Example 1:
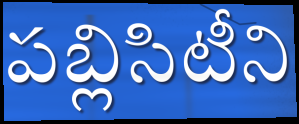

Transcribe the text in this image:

పబ్లిసిటీని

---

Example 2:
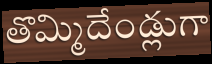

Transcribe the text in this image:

తొమ్మిదేండ్లుగా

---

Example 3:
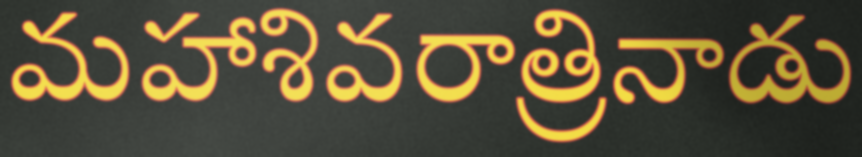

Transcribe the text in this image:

మహాశివరాత్రినాడు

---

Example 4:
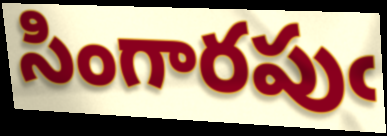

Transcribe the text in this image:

సింగారపుఁ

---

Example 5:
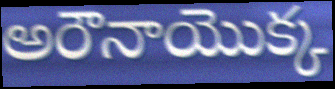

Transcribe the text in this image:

అరౌనాయొక్క